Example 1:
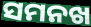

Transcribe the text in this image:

ସମନଖ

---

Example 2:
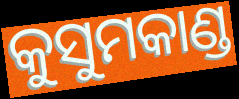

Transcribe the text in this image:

କୁସୁମକାଣ୍ଡ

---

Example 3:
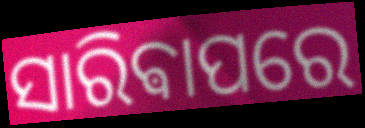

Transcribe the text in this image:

ସାରିଵାପରେ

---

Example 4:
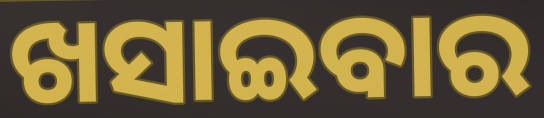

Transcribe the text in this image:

ଖସାଇବାର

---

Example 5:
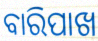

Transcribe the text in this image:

ବାରିପାଖ